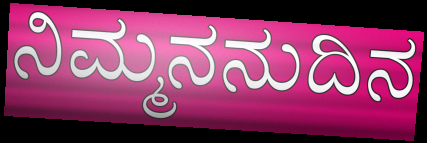
ನಿಮ್ಮನನುದಿನ